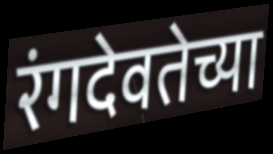
रंगदेवतेच्या